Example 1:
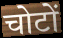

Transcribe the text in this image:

चोटों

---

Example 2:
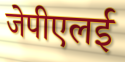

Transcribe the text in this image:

जेपीएलई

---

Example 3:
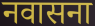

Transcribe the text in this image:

नवासना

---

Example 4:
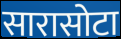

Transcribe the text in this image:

सारासोटा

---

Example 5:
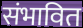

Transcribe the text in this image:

संभावित